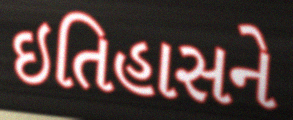
ઇતિહાસને